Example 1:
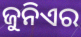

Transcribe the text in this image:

ଜୁନିଏର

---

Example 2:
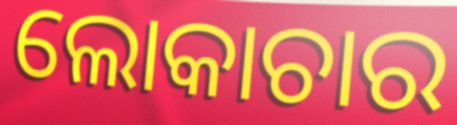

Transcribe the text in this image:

ଲୋକାଚାର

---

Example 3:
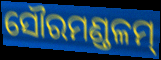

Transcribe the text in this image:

ସୌରମଣ୍ଡଳମ୍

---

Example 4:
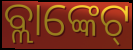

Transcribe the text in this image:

ବ୍ଲାଙ୍କେଟ୍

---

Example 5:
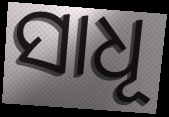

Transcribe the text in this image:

ସାଧୂ